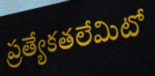
ప్రత్యేకతలేమిటో